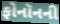
ફોનૉનની